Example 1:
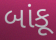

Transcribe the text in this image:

બાંકૂ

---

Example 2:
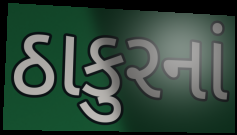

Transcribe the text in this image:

ઠાકુરનાં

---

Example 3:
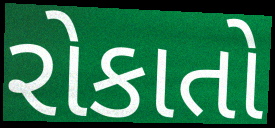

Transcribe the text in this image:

રોકાતો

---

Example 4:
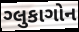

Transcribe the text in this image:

ગ્લુકાગોન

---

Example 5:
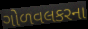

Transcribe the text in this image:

ગોળવલકરના